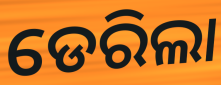
ଡେରିଲା